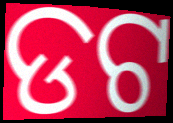
ଡଟ